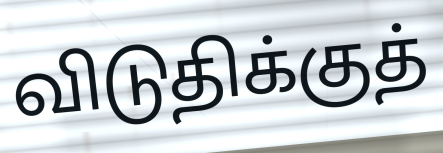
விடுதிக்குத்